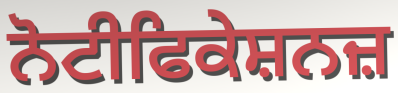
ਨੋਟੀਫਿਕੇਸ਼ਨਜ਼